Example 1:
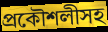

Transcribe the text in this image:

প্রকৌশলীসহ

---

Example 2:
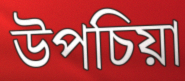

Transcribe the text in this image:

উপচিয়া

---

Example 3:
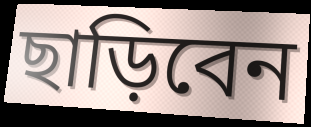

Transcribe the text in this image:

ছাড়িবেন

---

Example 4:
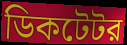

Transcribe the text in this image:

ডিকটেটর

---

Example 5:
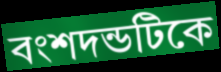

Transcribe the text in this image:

বংশদন্ডটিকে